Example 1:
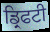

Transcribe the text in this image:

ਡ੍ਰਿਫਟੀ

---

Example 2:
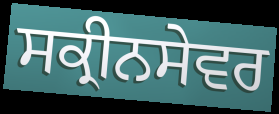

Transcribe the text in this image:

ਸਕ੍ਰੀਨਸੇਵਰ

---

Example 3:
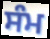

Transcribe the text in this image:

ਸੰਮ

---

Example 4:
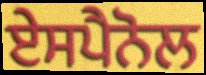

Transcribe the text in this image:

ਏਸਪੈਨੋਲ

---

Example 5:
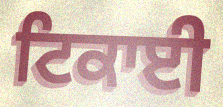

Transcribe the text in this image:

ਟਿਕਾਈ